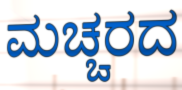
ಮಚ್ಚರದ